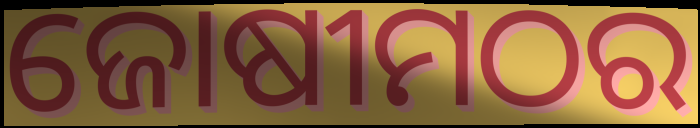
ଜୋଷୀମଠର